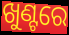
ଖୁଣ୍ଟରେ